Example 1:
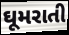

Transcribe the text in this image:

ઘૂમરાતી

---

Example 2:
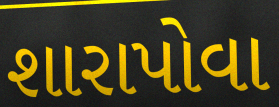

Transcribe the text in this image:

શારાપોવા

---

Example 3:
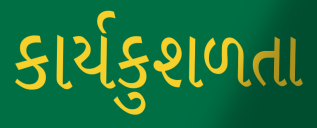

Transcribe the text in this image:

કાર્યકુશળતા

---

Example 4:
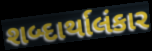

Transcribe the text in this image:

શબ્દાર્થાલંકાર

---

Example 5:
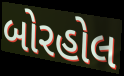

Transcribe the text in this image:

બોરહોલ